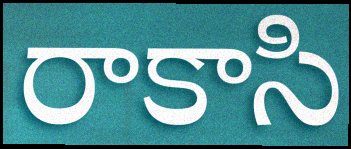
రాకాసి